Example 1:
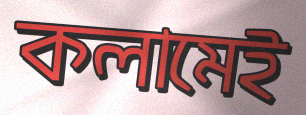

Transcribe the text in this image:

কলামেই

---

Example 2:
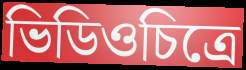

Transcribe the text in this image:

ভিডিওচিত্রে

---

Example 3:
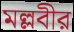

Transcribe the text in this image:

মল্লবীর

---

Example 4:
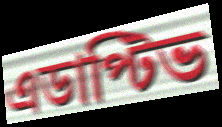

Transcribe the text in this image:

এডাপ্টিভ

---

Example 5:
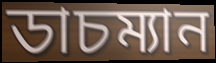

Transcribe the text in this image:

ডাচম্যান